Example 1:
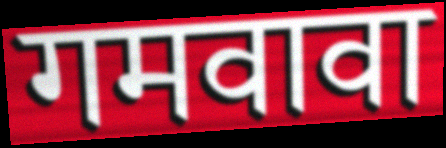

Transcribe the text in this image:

गमवावा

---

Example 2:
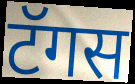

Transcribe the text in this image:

टॅगस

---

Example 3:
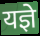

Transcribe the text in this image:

यज्ञे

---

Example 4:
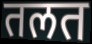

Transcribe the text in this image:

तलत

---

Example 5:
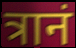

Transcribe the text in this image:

त्रानं